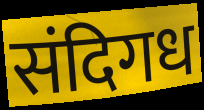
संदिगध